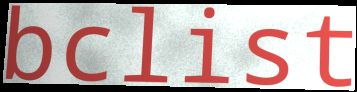
bclist